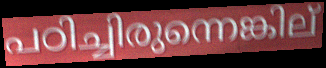
പഠിച്ചിരുന്നെങ്കില്